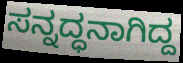
ಸನ್ನದ್ಧನಾಗಿದ್ದ